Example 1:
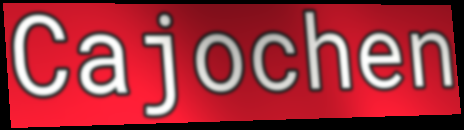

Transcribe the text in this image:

Cajochen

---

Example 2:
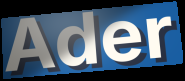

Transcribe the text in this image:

Ader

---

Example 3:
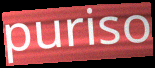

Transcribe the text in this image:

puriso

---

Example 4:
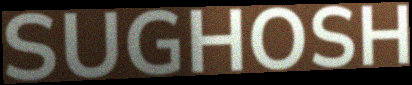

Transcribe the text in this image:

SUGHOSH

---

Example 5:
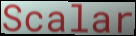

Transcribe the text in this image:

Scalar